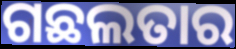
ଗଛଲତାର